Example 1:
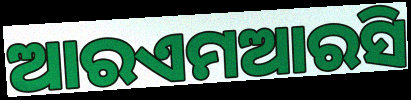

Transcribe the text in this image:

ଆରଏମଆରସି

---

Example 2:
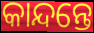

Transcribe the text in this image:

କାନ୍ଦନ୍ତେ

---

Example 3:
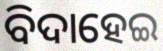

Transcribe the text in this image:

ବିଦାହେଇ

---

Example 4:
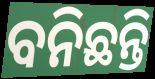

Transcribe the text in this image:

ବନିଛନ୍ତି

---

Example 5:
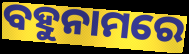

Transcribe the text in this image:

ବହୁନାମରେ